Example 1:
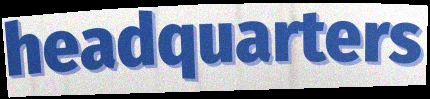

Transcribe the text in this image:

headquarters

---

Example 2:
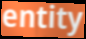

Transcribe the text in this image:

entity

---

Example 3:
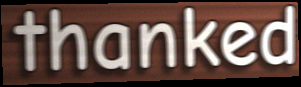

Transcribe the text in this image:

thanked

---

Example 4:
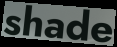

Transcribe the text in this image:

shade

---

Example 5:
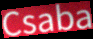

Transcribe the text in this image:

Csaba